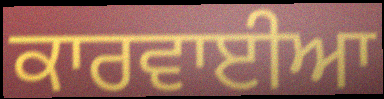
ਕਾਰਵਾਈਆ